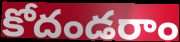
కోదండరాం